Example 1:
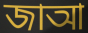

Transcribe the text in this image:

জাআ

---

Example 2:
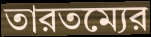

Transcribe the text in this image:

তারতম্যের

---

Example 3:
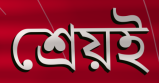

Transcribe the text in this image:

শ্রেয়ই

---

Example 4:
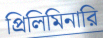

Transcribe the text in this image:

প্রিলিমিনারি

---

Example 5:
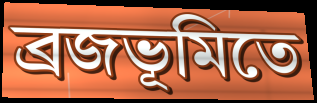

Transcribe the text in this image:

ব্রজভূমিতে